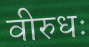
वीरुधः